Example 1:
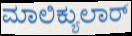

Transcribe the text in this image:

ಮಾಲಿಕ್ಯುಲಾರ್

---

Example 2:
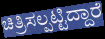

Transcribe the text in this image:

ಚಿತ್ರಿಸಲ್ಪಟ್ಟಿದ್ದಾರೆ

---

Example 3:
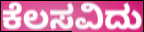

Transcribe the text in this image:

ಕೆಲಸವಿದು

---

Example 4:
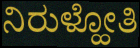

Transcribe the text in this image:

ನಿರುಳ್ಹೋತಿ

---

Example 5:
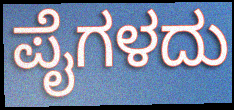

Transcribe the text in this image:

ಪೈಗಳದು